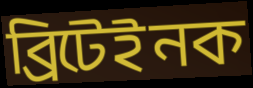
ব্ৰিটেইনক